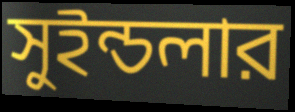
সুইন্ডলার